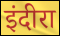
इंदीरा